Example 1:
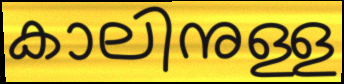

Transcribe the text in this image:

കാലിനുള്ള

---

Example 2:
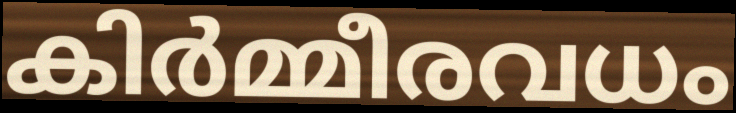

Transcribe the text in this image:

കിർമ്മീരവധം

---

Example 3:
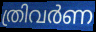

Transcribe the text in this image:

ത്രിവർണ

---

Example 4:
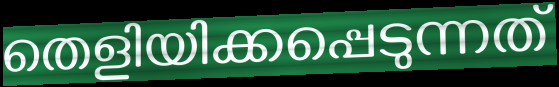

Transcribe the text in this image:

തെളിയിക്കപ്പെടുന്നത്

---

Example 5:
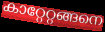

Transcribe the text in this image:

കാറ്റേറ്റങ്ങനെ